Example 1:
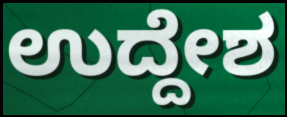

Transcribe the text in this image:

ಉದ್ದೇಶ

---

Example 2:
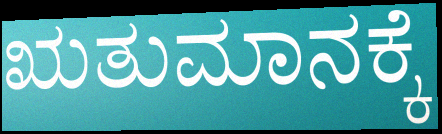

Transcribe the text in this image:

ಋತುಮಾನಕ್ಕೆ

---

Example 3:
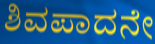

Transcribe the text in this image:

ಶಿವಪಾದನೇ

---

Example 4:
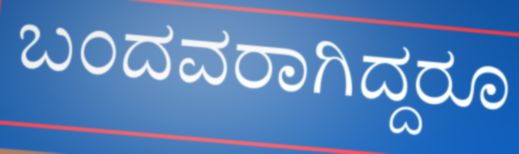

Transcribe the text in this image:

ಬಂದವರಾಗಿದ್ದರೂ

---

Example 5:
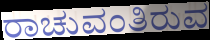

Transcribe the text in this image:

ರಾಚುವಂತಿರುವ